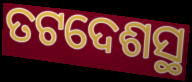
ତଟଦେଶସ୍ଥ